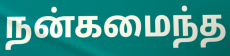
நன்கமைந்த